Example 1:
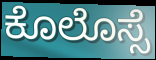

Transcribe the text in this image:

ಕೊಲೊಸ್ಸೆ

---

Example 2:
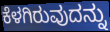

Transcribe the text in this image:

ಕೆಳಗಿರುವುದನ್ನು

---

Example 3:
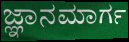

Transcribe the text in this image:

ಜ್ಞಾನಮಾರ್ಗ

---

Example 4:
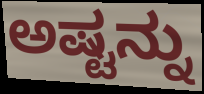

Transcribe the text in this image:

ಅಷ್ಟನ್ನು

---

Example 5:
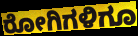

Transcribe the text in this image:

ರೋಗಿಗಳಿಗೂ